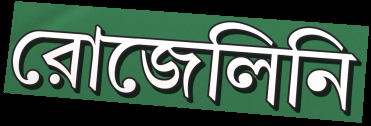
রোজেলিনি